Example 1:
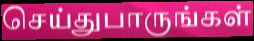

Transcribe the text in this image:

செய்துபாருங்கள்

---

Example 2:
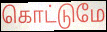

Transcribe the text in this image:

கொட்டுமே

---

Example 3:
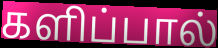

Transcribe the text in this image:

களிப்பால்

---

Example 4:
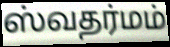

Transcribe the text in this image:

ஸ்வதர்மம்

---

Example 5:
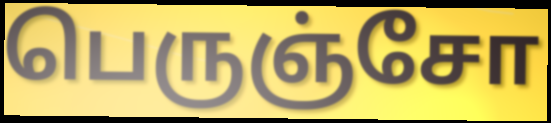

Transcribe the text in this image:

பெருஞ்சோ